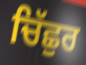
ਚਿੱਛੁਰ